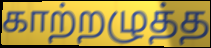
காற்றழுத்த